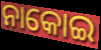
ନାକୋଇ